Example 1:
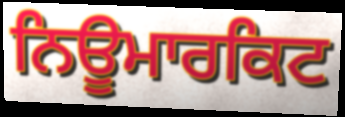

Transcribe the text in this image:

ਨਿਊਮਾਰਕਿਟ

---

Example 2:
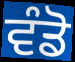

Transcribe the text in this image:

ਵੰਡੋ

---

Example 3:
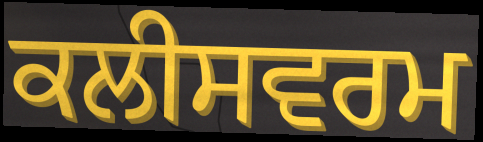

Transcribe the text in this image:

ਕਲੀਸਵਰਮ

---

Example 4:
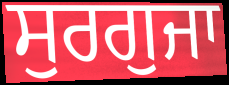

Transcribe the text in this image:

ਸੁਰਗੁਜਾ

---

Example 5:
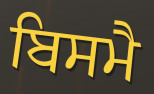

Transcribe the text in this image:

ਬਿਸਮੈ